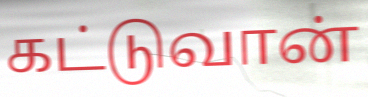
கட்டுவான்